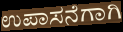
ಉಪಾಸನೆಗಾಗಿ